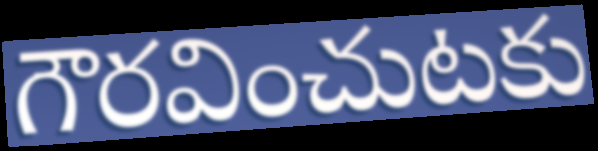
గౌరవించుటకు